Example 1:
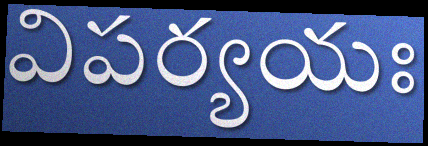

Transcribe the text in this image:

విపర్యయః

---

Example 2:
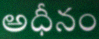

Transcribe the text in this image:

అధీనం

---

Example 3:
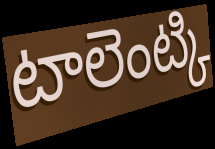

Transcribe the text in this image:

టాలెంట్కి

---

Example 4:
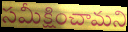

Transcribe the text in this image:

సమీక్షించామని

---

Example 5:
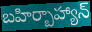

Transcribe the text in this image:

బహిర్బాహ్యాన్